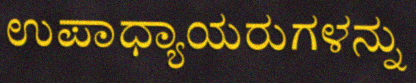
ಉಪಾಧ್ಯಾಯರುಗಳನ್ನು